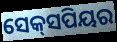
ସେକ୍‍ସପିୟର